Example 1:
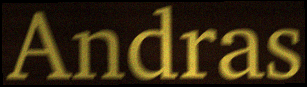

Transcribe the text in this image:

Andras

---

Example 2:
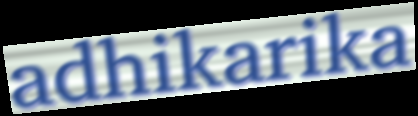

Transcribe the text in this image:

adhikarika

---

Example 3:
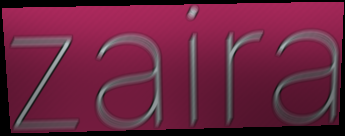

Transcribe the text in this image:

zaira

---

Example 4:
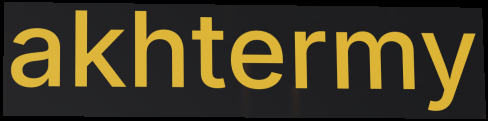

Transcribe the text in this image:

akhtermy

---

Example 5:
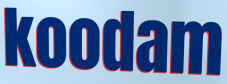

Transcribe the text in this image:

koodam